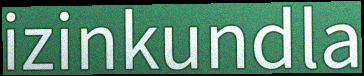
izinkundla